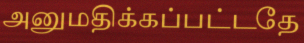
அனுமதிக்கப்பட்டதே